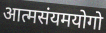
आत्मसंयमयोगो